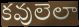
కవులెలా